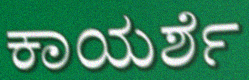
ಕಾಯರ್ಶೆ